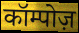
कॉम्पोज़